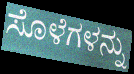
ಸೊಳೆಗಳನ್ನು